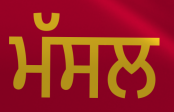
ਮੱਸਲ